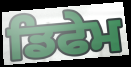
ਡਿਫੇਮ